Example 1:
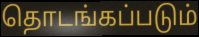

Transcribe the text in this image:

தொடங்கப்படும்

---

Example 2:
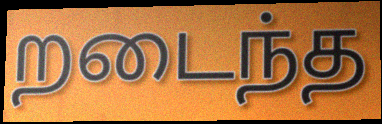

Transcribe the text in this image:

றடைந்த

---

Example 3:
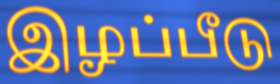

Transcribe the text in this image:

இழப்பீடு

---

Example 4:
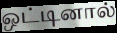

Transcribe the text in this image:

ஒட்டினால்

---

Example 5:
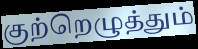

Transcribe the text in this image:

குற்றெழுத்தும்